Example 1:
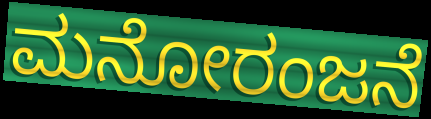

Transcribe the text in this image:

ಮನೋರಂಜನೆ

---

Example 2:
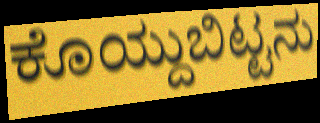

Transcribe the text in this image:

ಕೊಯ್ದುಬಿಟ್ಟನು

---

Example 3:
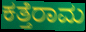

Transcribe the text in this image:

ಕತ್ತೆರಾಮ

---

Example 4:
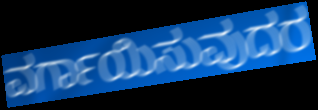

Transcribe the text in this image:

ವರ್ಗಾಯಿಸುವುದರ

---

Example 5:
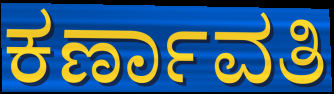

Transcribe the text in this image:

ಕರ್ಣಾವತಿ